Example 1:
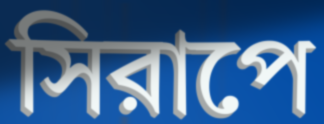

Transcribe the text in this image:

সিরাপে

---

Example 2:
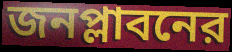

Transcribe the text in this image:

জনপ্লাবনের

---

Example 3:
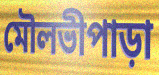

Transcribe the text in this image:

মৌলভীপাড়া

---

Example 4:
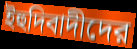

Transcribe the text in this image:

ইহুদিবাদীদের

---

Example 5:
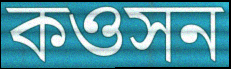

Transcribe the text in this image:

কওসন